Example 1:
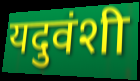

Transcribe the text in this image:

यदुवंशी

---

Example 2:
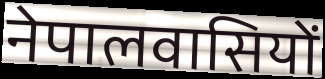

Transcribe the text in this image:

नेपालवासियों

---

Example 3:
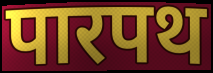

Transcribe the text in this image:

पारपथ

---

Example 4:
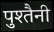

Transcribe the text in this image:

पुश्‍तैनी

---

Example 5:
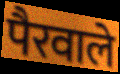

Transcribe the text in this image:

पैरवाले